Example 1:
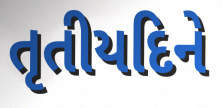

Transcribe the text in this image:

તૃતીયદિને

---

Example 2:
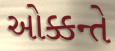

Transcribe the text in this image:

ઓક્કન્તે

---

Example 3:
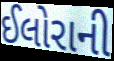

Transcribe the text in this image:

ઈલોરાની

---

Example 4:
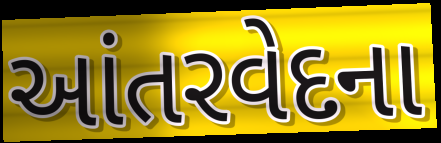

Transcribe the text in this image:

આંતરવેદના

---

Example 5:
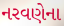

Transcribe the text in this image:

નરવણેના